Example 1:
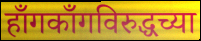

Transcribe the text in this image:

हाँगकाँगविरुद्धच्या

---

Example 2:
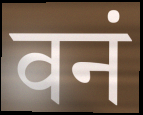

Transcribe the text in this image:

वनं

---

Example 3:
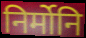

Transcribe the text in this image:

निर्मोनि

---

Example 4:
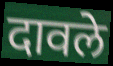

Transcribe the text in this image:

दावले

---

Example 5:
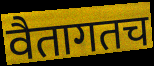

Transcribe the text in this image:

वैतागतच